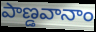
పాణ్డవానాం